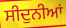
ਸੀਦੁਨੀਆਂ